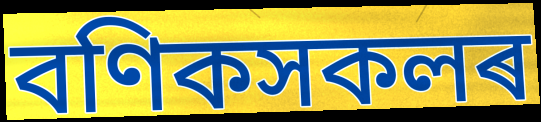
বণিকসকলৰ